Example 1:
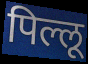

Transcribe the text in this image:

पिल्लू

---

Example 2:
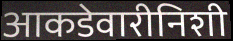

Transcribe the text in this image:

आकडेवारीनिशी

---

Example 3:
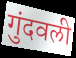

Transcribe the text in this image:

गुंदवली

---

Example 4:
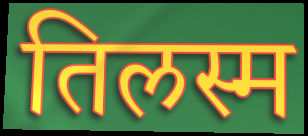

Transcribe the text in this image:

तिलस्म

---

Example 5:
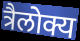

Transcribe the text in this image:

त्रैलोक्य